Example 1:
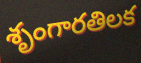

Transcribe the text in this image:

శృంగారతిలక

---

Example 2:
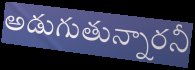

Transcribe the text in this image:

అడుగుతున్నారనీ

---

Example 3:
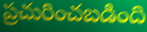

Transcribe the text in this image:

ప్రచురించబడింది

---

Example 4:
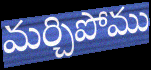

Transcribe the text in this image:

మర్చిపోము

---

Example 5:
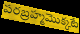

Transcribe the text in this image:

పరబ్రహ్మమొక్కటే